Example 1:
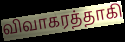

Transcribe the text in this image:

விவாகரத்தாகி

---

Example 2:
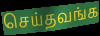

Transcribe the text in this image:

செய்தவங்க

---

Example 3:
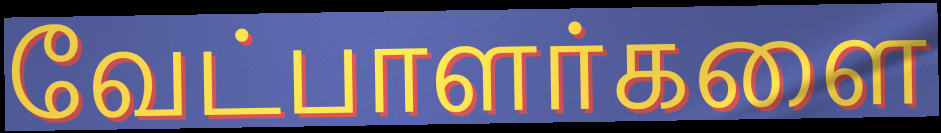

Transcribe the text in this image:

வேட்பாளர்களை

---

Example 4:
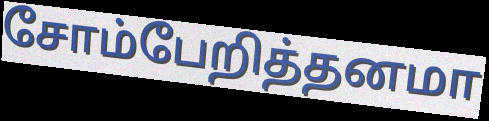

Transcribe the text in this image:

சோம்பேறித்தனமா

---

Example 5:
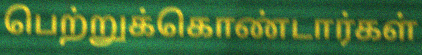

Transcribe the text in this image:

பெற்றுக்கொண்டார்கள்